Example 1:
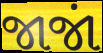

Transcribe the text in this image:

જાજાં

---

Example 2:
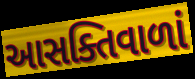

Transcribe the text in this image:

આસક્તિવાળાં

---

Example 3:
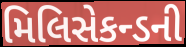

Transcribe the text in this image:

મિલિસેકન્ડની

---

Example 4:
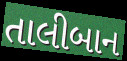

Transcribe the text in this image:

તાલીબાન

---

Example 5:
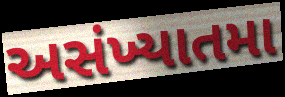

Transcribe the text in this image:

અસંખ્યાતમા